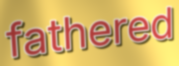
fathered